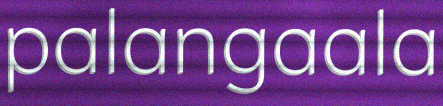
palangaala